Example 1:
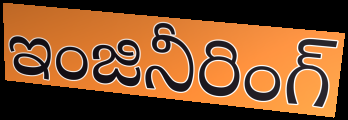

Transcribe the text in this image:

ఇంజినీరింగ్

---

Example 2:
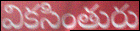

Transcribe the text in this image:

వికసింతురు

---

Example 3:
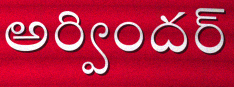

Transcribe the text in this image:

అర్విందర్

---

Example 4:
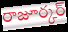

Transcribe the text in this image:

రాజూర్కర్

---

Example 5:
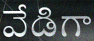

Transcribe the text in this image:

వేడిగా